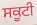
ਸਕੂਟੀ